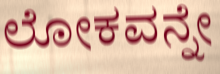
ಲೋಕವನ್ನೇ